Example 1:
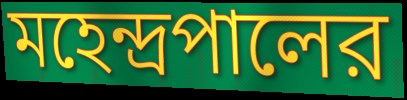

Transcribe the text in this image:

মহেন্দ্রপালের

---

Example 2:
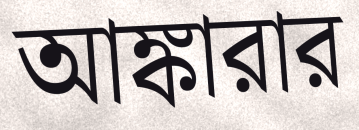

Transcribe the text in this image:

আঙ্কারার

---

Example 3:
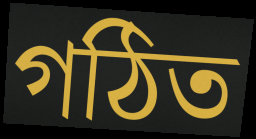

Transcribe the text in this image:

গঠিত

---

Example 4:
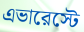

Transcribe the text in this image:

এভারেস্টে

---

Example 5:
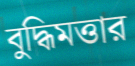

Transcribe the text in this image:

বুদ্ধিমত্তার